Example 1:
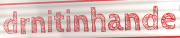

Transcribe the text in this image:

drnitinhande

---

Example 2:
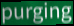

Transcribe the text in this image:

purging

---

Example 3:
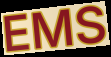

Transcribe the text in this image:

EMS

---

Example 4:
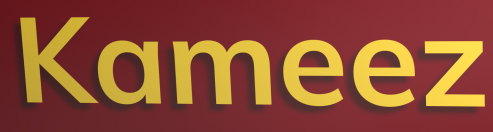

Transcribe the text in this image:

Kameez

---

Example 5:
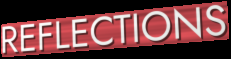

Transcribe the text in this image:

REFLECTIONS